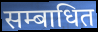
सम्बाधित